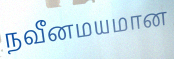
நவீனமயமான